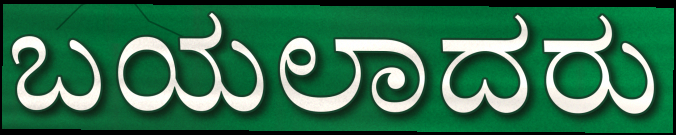
ಬಯಲಾದರು